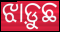
ଝାଡ଼ୁଛ